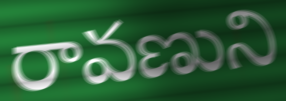
రావణుని